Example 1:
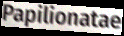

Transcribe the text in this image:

Papilionatae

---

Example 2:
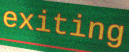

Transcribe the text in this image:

exiting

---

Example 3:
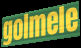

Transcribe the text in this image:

golmele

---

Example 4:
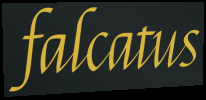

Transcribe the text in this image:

falcatus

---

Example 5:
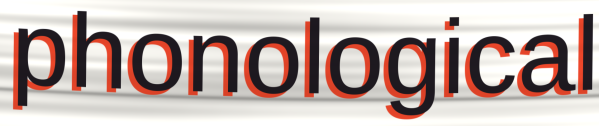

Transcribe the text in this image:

phonological